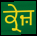
ਕ੍ਰੇਜ਼